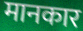
मानकार